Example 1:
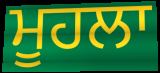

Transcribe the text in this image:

ਮੂਹਲਾ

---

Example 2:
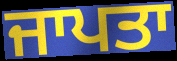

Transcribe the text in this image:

ਜਾਪਤਾ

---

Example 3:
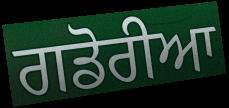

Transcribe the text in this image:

ਗਡੋਰੀਆ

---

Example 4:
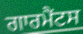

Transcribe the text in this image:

ਗਾਰਮੈਂਟਸ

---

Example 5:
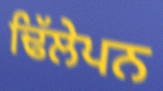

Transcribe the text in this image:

ਢਿੱਲੇਪਨ